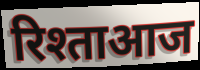
रिश्ताआज